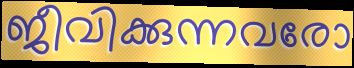
ജീവിക്കുന്നവരോ